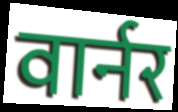
वार्नर